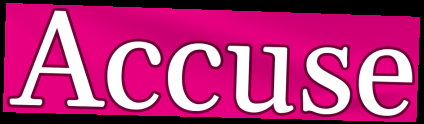
Accuse